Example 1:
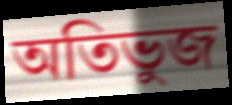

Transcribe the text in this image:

অতিভুজ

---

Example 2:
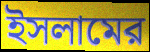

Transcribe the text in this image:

ইসলামের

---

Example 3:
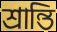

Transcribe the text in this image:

শ্রান্তি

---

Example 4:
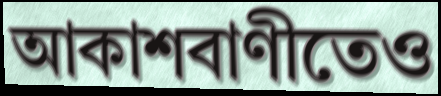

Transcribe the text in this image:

আকাশবাণীতেও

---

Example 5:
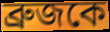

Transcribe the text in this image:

ব্রুজকে